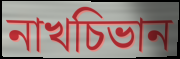
নাখচিভান